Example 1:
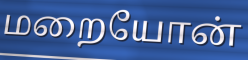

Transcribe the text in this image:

மறையோன்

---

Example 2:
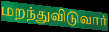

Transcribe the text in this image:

மறந்துவிடுவார்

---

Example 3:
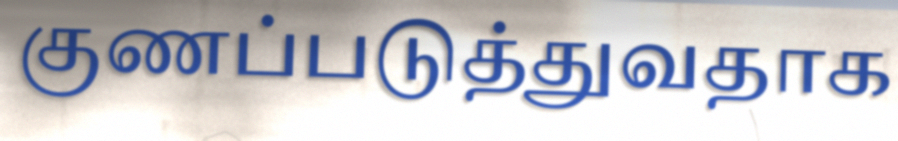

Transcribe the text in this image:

குணப்படுத்துவதாக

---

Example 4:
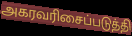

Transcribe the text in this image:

அகரவரிசைப்படுத்தி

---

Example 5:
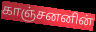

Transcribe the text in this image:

காஞ்சனனின்